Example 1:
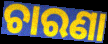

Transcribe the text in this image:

ଚାରଣା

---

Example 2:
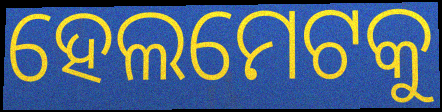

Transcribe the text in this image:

ହେଲମେଟକୁ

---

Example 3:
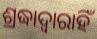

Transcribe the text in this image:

ଶ୍ରଦ୍ଧାଦ୍ୱାରାହିଁ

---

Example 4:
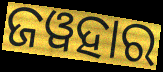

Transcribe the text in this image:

ଜୱହାର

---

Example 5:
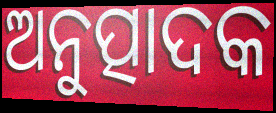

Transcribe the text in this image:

ଅନୁତ୍ପାଦକ